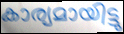
കാര്യമായിട്ടു